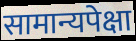
सामान्यपेक्षा